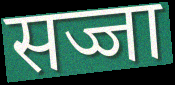
सज्जा